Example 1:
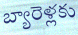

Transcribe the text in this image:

బ్యారెళ్లకు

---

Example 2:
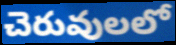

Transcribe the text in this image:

చెరువులలో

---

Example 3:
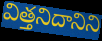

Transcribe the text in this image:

విత్తనిదానిని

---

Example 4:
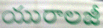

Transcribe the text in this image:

యురాలజీ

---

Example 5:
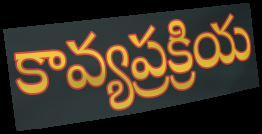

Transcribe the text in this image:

కావ్యప్రక్రియ